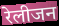
रेलीजन